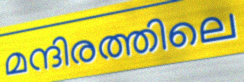
മന്ദിരത്തിലെ